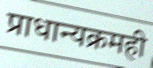
प्राधान्यक्रमही